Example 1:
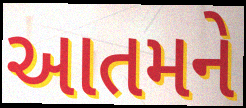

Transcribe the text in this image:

આતમને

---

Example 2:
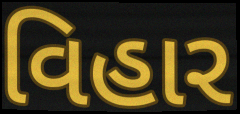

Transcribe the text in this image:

વિહાર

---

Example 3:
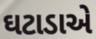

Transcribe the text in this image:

ઘટાડાએ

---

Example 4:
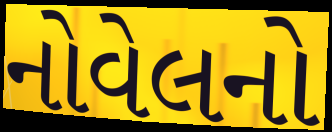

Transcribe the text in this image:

નોવેલનો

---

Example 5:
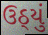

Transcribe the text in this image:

ઉઠ્યું